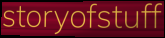
storyofstuff